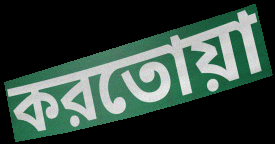
করতোয়া